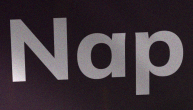
Nap